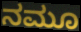
ನಮೂ